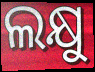
ଲକ୍ଷୁ